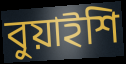
বুয়াইশি